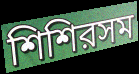
শিশিরসম